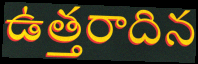
ఉత్తరాదిన